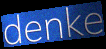
denke